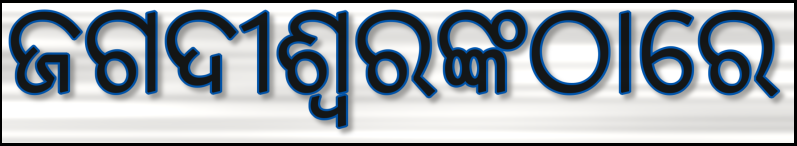
ଜଗଦୀଶ୍ୱରଙ୍କଠାରେ